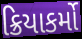
ક્રિયાકર્મો